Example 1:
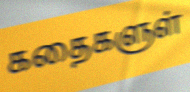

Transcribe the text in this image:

கதைகளுள்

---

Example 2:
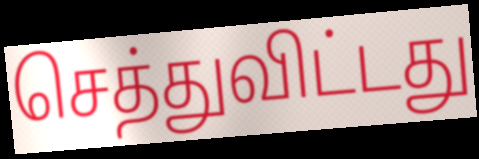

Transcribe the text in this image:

செத்துவிட்டது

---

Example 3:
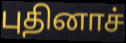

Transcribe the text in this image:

புதினாச்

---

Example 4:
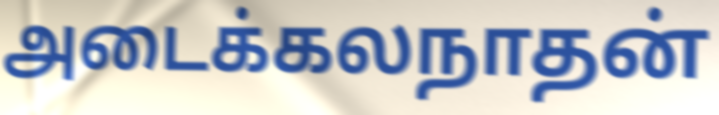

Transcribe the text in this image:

அடைக்கலநாதன்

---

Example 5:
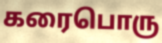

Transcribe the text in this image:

கரைபொரு